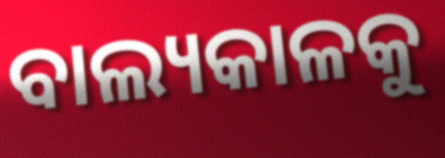
ବାଲ୍ୟକାଳକୁ